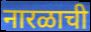
नारळाची